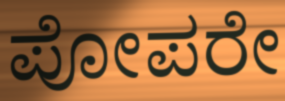
ಪೋಪರೇ